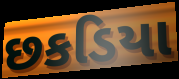
છકડિયા